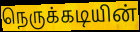
நெருக்கடியின்